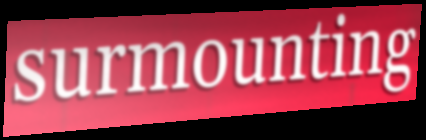
surmounting